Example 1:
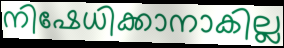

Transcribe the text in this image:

നിഷേധിക്കാനാകില്ല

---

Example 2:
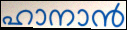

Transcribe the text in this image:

ഹാനാൻ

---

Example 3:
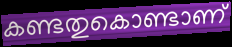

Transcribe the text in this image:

കണ്ടതുകൊണ്ടാണ്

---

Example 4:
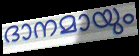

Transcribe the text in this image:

ദാനമായും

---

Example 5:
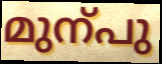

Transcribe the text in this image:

മുന്പു